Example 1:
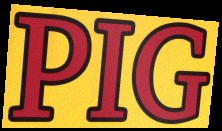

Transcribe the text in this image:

PIG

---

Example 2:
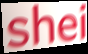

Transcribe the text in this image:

shei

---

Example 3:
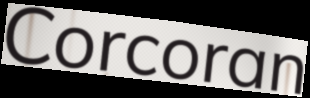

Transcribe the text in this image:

Corcoran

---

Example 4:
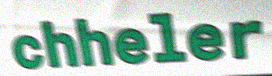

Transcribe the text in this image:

chheler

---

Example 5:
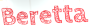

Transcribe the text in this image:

Beretta